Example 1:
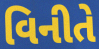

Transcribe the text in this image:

વિનીતે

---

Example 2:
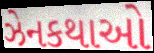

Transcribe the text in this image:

ઝેનકથાઓ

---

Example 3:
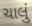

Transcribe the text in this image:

ચાલું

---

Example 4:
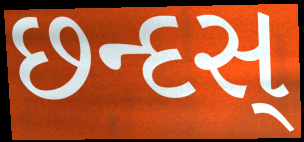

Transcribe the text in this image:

છન્દસ્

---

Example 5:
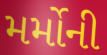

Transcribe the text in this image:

મર્મોની